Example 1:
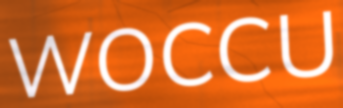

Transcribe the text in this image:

WOCCU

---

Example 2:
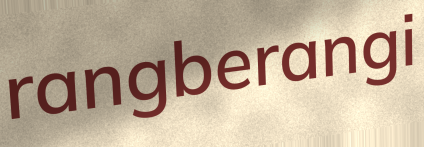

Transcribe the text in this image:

rangberangi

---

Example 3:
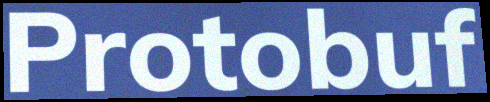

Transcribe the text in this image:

Protobuf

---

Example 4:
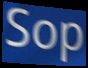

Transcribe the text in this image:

Sop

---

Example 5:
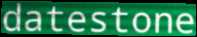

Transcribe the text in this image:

datestone